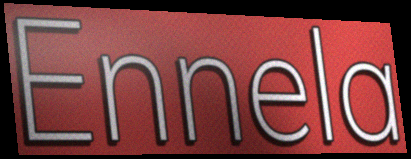
Ennela